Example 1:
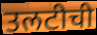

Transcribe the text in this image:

उलटीची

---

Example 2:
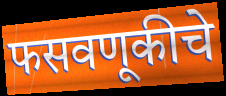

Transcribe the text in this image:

फसवणूकीचे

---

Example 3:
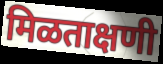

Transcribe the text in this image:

मिळताक्षणी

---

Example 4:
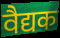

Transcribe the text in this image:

वैद्यक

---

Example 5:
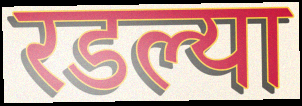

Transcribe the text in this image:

रडल्या